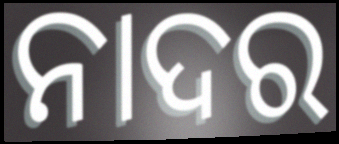
ନାଦର